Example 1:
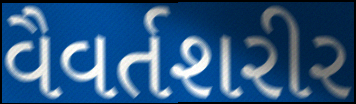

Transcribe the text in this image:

વૈવર્તશરીર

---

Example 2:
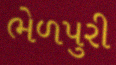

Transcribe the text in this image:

ભેળપુરી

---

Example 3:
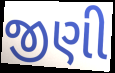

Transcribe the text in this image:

જીણી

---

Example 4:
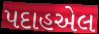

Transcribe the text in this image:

પદાહએલ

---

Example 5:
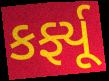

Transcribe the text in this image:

કર્ફ્યૂ